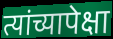
त्यांच्यापेक्षा